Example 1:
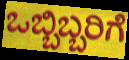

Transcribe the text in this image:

ಒಬ್ಬಿಬ್ಬರಿಗೆ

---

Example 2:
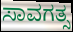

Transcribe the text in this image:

ಸಾವಗತ್ಸ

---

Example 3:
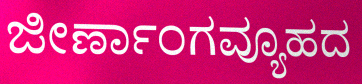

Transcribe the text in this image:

ಜೀರ್ಣಾಂಗವ್ಯೂಹದ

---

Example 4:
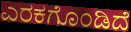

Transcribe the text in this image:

ಎರಕಗೊಂಡಿದೆ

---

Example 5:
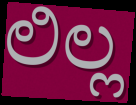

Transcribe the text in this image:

ಲಿಲ್ಲ